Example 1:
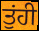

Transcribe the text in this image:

ਤੁਂਹੀ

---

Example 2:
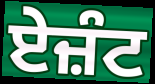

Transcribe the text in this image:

ਏਜ਼ੰਟ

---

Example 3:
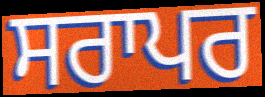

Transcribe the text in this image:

ਸਰਾਪਰ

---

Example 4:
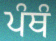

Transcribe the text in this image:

ਪੰਥੰ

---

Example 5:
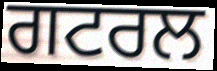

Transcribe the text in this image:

ਗਟਰਲ